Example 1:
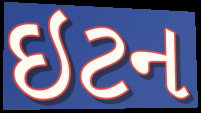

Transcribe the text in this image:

ઇટન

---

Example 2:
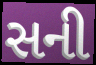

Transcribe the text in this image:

સની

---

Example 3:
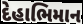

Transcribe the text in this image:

દેહાભિમાન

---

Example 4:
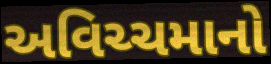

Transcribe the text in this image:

અવિચ્ચમાનો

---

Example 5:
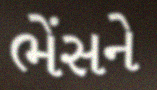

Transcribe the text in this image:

ભેંસને